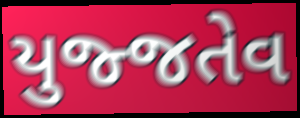
યુજ્જતેવ